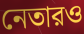
নেতারও